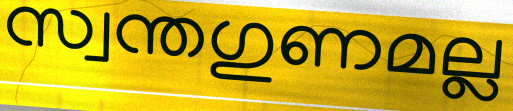
സ്വന്തഗുണമല്ല